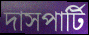
দাসপার্টি